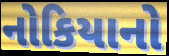
નોકિયાનો